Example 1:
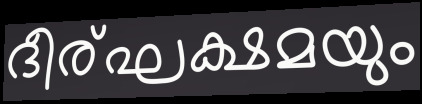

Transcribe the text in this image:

ദീര്ഘക്ഷമയും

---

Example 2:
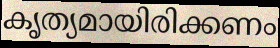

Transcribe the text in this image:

കൃത്യമായിരിക്കണം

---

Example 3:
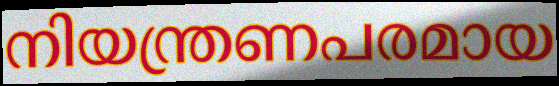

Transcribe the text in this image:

നിയന്ത്രണപരമായ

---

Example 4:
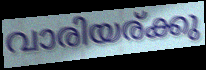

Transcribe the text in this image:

വാരിയര്ക്കു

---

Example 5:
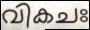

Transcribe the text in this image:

വികചഃ